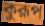
কুরূপ